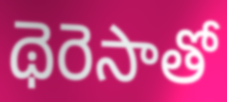
థెరెసాతో